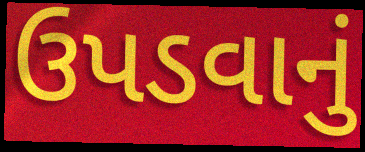
ઉપડવાનું